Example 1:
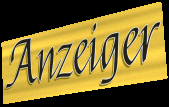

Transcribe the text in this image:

Anzeiger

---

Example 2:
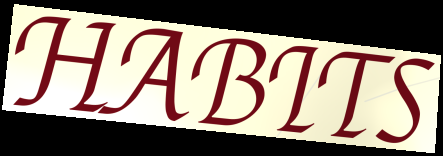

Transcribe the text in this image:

HABITS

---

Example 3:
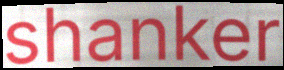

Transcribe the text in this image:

shanker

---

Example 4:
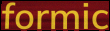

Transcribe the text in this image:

formic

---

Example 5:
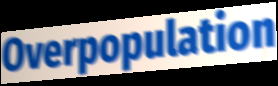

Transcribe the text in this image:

Overpopulation